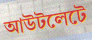
আউটলেটে